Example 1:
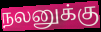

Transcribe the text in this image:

நலனுக்கு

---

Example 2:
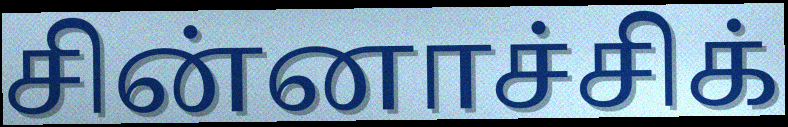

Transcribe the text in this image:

சின்னாச்சிக்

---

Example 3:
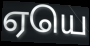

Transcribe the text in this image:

ஏயெ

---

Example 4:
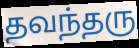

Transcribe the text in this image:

தவந்தரு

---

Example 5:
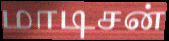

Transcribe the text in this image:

மாடிசன்